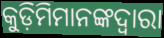
କୁଡ଼ିମିମାନଙ୍କଦ୍ୱାରା